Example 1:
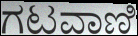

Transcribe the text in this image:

ಗಟವಾಣಿ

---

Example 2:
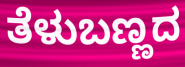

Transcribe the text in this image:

ತೆಳುಬಣ್ಣದ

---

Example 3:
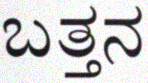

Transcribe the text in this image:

ಬತ್ತನ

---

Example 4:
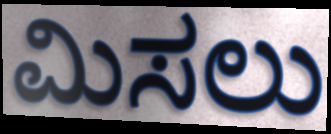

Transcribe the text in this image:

ಮಿಸಲು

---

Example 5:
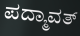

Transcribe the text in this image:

ಪದ್ಮಾವತ್